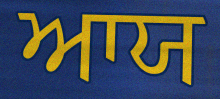
ਆਯ